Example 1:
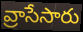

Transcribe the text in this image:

వ్రాసేసారు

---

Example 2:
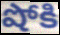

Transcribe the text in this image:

షోకి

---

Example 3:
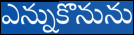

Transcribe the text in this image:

ఎన్నుకొనును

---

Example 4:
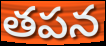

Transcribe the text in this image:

తపన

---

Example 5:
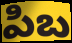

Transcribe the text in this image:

పిబ